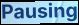
Pausing